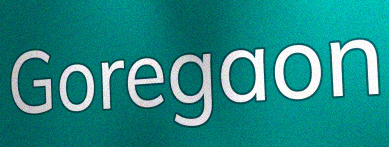
Goregaon